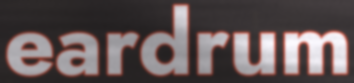
eardrum